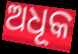
ଅଧୂକ